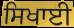
ਸਿਖਾਈ